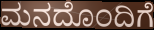
ಮನದೊಂದಿಗೆ